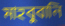
মাহবুবানি